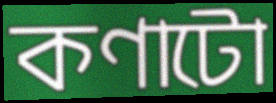
কণাটো